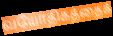
வயோதிகத்தைக்